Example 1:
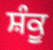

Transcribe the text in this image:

ਸ਼ੰਕੂ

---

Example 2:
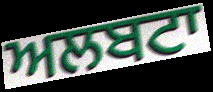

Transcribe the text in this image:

ਅਲਬਟਾ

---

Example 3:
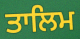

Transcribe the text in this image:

ਤਾਲਿਮ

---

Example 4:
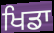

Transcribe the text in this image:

ਖਿਡਾ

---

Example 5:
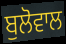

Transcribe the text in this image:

ਬੁਲੋਵਾਲ